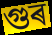
গুৰ